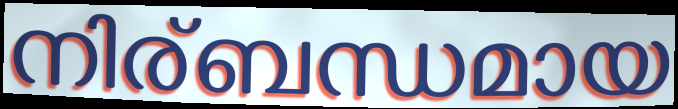
നിര്ബന്ധമായ